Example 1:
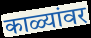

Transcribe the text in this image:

काळ्यांवर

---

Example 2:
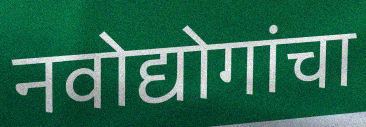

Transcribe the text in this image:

नवोद्योगांचा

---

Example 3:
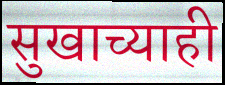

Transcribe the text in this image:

सुखाच्याही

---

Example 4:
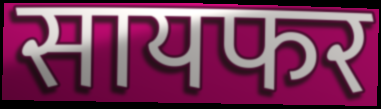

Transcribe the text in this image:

सायफर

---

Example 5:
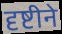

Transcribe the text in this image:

दृष्टीने